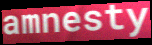
amnesty